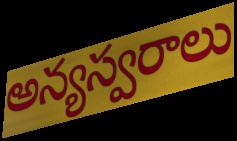
అన్యస్వరాలు